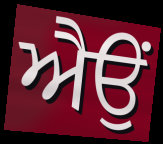
ਐਉਂ